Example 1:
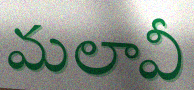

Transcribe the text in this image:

మలావీ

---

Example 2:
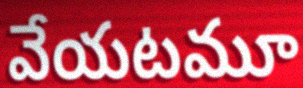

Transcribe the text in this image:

వేయటమూ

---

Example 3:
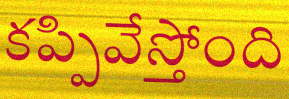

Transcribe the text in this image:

కప్పివేస్తోంది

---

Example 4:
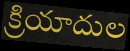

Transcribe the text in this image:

క్రియాదుల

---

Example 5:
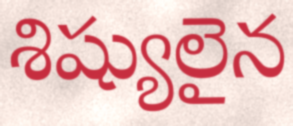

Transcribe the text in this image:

శిష్యులైన